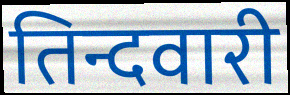
तिन्दवारी